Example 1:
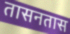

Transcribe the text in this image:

तासनतास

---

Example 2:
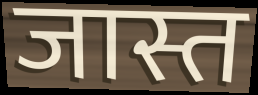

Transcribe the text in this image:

जास्त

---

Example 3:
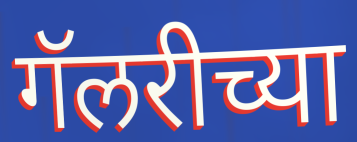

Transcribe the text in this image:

गॅलरीच्या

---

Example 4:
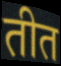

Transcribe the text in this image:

तीत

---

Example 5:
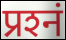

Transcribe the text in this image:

प्रश्‍नं